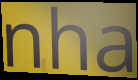
nha